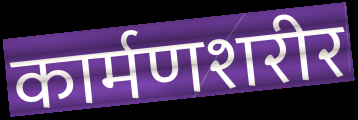
कार्मणशरीर